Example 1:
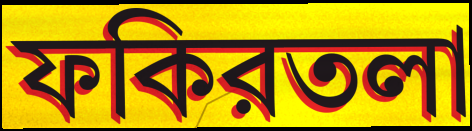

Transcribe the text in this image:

ফকিরতলা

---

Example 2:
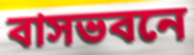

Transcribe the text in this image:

বাসভবনে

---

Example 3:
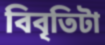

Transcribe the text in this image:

বিবৃতিটা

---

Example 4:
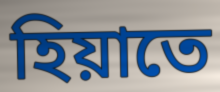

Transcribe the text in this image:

হিয়াতে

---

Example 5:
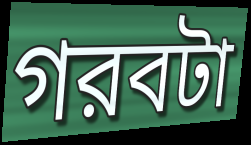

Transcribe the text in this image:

গরবটা